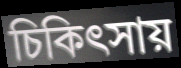
চিকিৎসায়